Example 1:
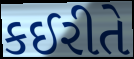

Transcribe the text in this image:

કઈરીતે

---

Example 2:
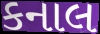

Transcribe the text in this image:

કનાલ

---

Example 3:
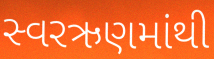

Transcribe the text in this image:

સ્વરઋણમાંથી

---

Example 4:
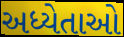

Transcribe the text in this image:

અધ્યેતાઓ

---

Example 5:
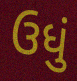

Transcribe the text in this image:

ઉધું